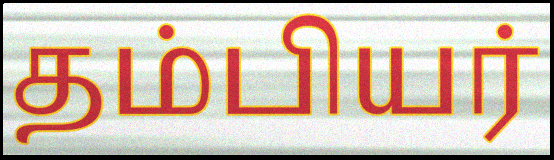
தம்பியர்